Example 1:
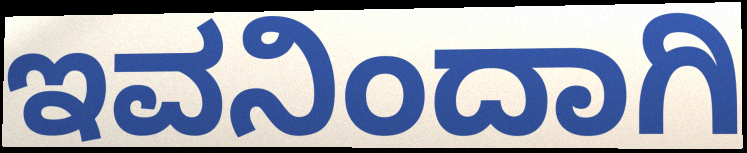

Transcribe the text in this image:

ಇವನಿಂದಾಗಿ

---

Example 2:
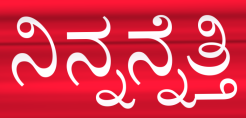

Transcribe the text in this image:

ನಿನ್ನನ್ನೆತ್ತಿ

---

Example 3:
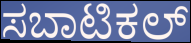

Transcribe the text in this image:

ಸಬಾಟಿಕಲ್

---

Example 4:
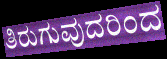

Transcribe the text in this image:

ತಿರುಗುವುದರಿಂದ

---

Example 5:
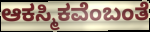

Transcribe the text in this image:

ಆಕಸ್ಮಿಕವೆಂಬಂತೆ